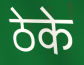
ठेके